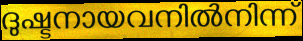
ദുഷ്ടനായവനിൽനിന്ന്